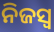
ନିଜସ୍ଵ